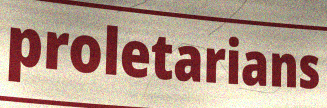
proletarians